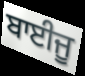
ਬਾਈਜੂ